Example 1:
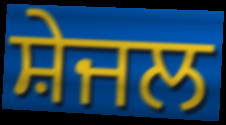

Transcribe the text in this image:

ਸ਼ੇਜਲ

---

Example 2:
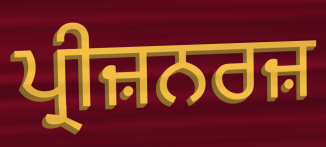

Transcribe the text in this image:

ਪ੍ਰੀਜ਼ਨਰਜ਼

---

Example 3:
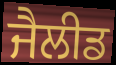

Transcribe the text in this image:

ਜੈਲੀਡ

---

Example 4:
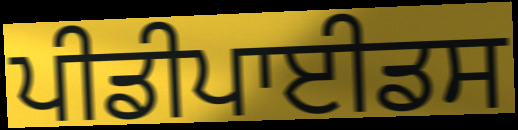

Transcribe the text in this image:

ਪੀਡੀਪਾਈਡਸ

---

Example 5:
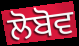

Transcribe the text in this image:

ਲੋਬੋਵ